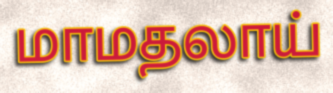
மாமதலாய்